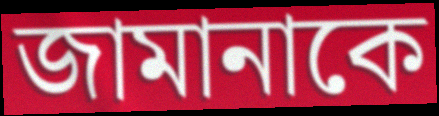
জামানাকে